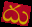
దు